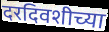
दरदिवशीच्या